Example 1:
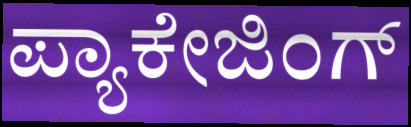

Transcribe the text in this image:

ಪ್ಯಾಕೇಜಿಂಗ್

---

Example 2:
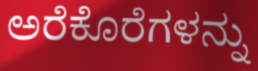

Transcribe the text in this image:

ಅರೆಕೊರೆಗಳನ್ನು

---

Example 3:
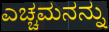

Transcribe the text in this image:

ಎಚ್ಚಮನನ್ನು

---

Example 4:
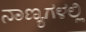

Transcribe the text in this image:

ನಾಣ್ಯಗಳಲ್ಲಿ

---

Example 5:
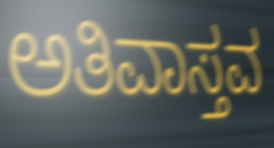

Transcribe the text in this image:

ಅತಿವಾಸ್ತವ